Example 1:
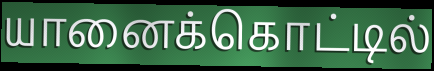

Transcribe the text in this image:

யானைக்கொட்டில்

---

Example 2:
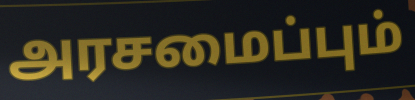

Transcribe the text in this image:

அரசமைப்பும்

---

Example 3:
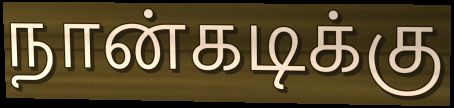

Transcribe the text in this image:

நான்கடிக்கு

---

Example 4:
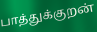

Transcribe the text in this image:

பாத்துக்குறன்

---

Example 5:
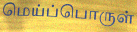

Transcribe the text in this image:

மெய்ப்பொருள்